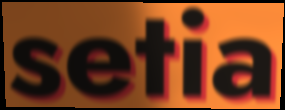
setia